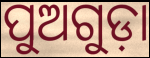
ପୁଅଗୁଡ଼ା